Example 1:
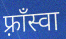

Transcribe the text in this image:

फ़्राँस्वा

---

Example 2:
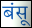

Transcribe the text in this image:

बंसू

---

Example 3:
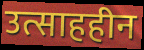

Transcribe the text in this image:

उत्साहहीन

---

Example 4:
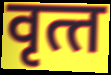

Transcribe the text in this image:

वृत्‍त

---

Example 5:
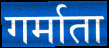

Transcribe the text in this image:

गर्माता